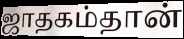
ஜாதகம்தான்